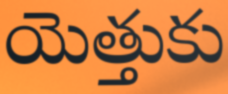
యెత్తుకు